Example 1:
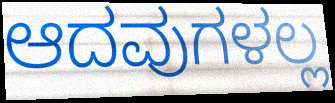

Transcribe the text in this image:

ಆದವುಗಳಲ್ಲ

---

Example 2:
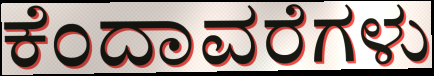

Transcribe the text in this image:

ಕೆಂದಾವರೆಗಳು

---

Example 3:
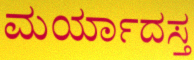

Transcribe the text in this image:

ಮರ್ಯಾದಸ್ತ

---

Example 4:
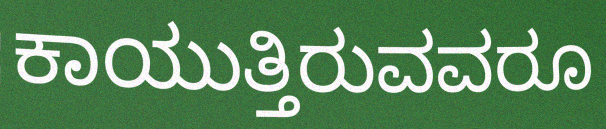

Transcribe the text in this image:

ಕಾಯುತ್ತಿರುವವರೂ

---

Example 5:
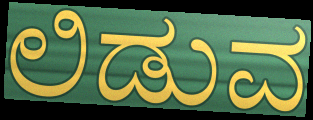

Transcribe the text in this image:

ಲಿಡುವ